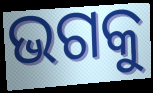
ଭଗକୁ